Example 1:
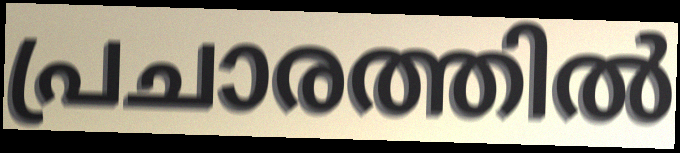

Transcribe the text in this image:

പ്രചാരത്തിൽ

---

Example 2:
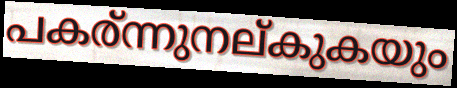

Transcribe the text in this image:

പകര്ന്നുനല്കുകയും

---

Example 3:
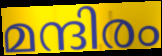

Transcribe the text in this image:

മന്ദിരം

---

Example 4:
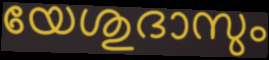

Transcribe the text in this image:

യേശുദാസും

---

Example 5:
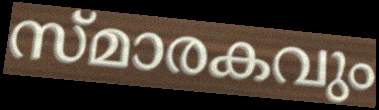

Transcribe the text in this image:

സ്മാരകവും